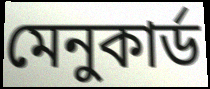
মেনুকার্ড